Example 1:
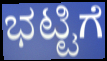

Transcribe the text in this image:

ಭಟ್ಟಿಗೆ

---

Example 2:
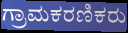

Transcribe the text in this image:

ಗ್ರಾಮಕರಣಿಕರು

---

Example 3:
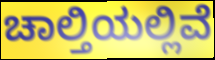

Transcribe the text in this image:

ಚಾಲ್ತಿಯಲ್ಲಿವೆ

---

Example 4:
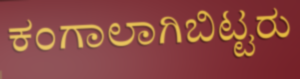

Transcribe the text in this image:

ಕಂಗಾಲಾಗಿಬಿಟ್ಟರು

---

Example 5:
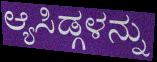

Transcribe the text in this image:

ಆ್ಯಸಿಡ್ಗಳನ್ನು